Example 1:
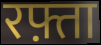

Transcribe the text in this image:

रफ़्ता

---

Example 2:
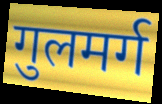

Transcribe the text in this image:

गुलमर्ग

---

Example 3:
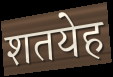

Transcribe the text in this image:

शतयेह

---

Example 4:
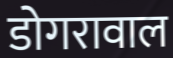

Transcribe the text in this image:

डोगरावाल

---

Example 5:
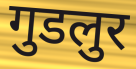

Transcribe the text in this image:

गुडलुर